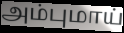
அம்புமாய்